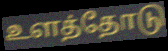
உளத்தோடு